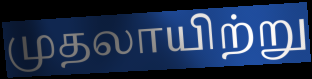
முதலாயிற்று